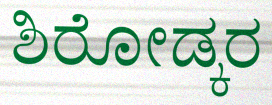
ಶಿರೋಡ್ಕರ